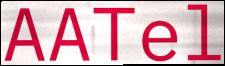
AATel